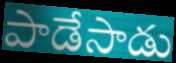
పాడేసాడు